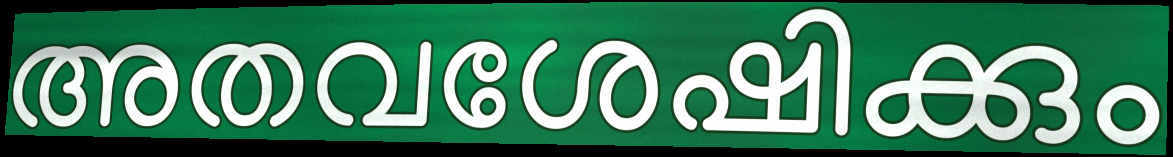
അതവശേഷിക്കും